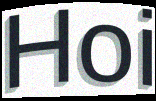
Hoi